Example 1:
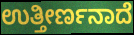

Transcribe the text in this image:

ಉತ್ತೀರ್ಣನಾದೆ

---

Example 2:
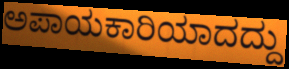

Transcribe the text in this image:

ಅಪಾಯಕಾರಿಯಾದದ್ದು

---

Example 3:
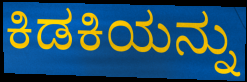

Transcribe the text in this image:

ಕಿಡಕಿಯನ್ನು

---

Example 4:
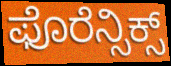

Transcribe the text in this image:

ಫೊರೆನ್ಸಿಕ್ಸ್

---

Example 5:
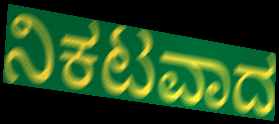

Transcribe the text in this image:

ನಿಕಟವಾದ